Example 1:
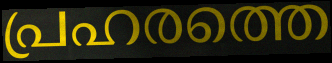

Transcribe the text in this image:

പ്രഹരത്തെ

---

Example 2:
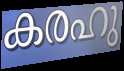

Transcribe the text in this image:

കരഹു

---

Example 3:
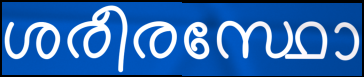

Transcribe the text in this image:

ശരീരസ്ഥോ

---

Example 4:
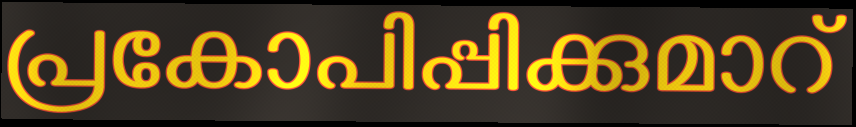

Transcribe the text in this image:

പ്രകോപിപ്പിക്കുമാറ്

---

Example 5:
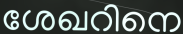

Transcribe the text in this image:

ശേഖറിനെ